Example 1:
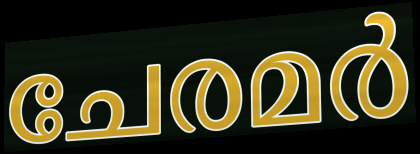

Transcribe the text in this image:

ചേരമർ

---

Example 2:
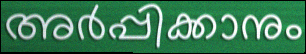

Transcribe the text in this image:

അർപ്പിക്കാനും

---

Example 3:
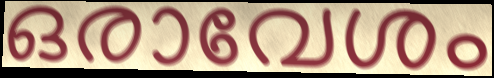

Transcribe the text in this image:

ഒരാവേശം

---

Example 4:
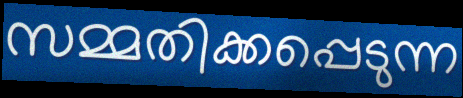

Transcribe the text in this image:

സമ്മതിക്കപ്പെടുന്ന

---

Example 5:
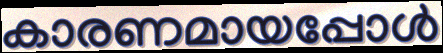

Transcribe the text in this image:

കാരണമായപ്പോൾ